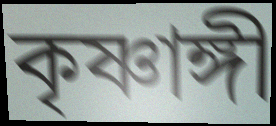
কৃষ্ণাঙ্গী